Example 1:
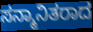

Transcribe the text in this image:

ಸನ್ಮಾನಿತರಾದ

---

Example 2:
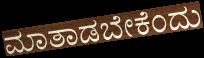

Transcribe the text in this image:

ಮಾತಾಡಬೇಕೆಂದು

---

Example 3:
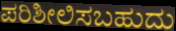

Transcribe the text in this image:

ಪರಿಶೀಲಿಸಬಹುದು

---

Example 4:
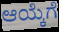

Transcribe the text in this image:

ಆಯ್ಕೆಗೆ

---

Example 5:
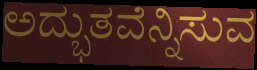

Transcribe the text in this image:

ಅದ್ಭುತವೆನ್ನಿಸುವ